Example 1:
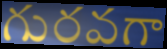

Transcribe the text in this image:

గురవగా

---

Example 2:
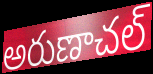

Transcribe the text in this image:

అరుణాచల్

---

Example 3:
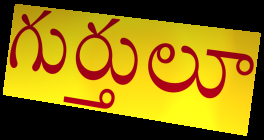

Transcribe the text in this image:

గుర్తులూ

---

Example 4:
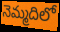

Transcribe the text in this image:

నెమ్మదిలో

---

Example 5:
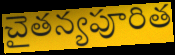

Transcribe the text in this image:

చైతన్యపూరిత